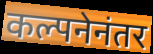
कल्पनेनंतर